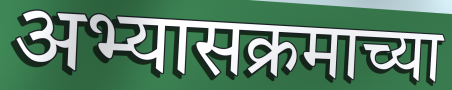
अभ्यासक्रमाच्या